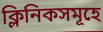
ক্লিনিকসমূহে